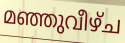
മഞ്ഞുവീഴ്ച